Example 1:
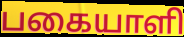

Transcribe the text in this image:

பகையாளி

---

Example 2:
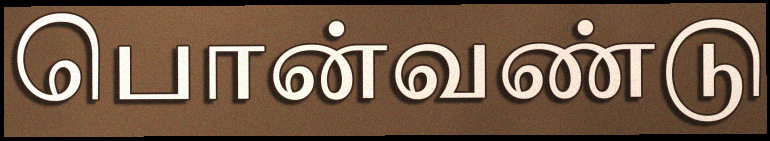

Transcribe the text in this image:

பொன்வண்டு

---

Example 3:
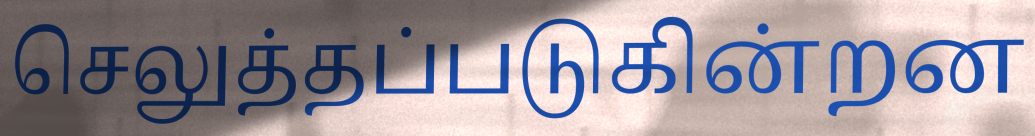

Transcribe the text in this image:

செலுத்தப்படுகின்றன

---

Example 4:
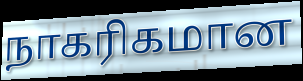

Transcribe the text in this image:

நாகரிகமான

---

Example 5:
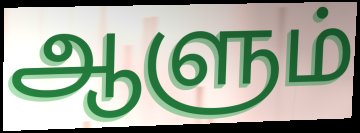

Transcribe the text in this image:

ஆளும்